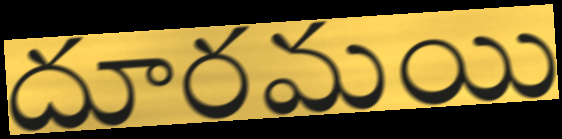
దూరమయి